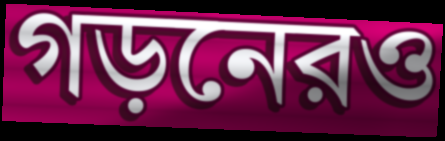
গড়নেরও